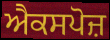
ਐਕਸਪੋਜ਼